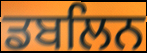
ਡਬਲਿਨ